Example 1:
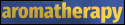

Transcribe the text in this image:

aromatherapy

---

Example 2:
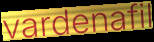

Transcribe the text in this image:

vardenafil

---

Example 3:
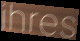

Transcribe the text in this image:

ihres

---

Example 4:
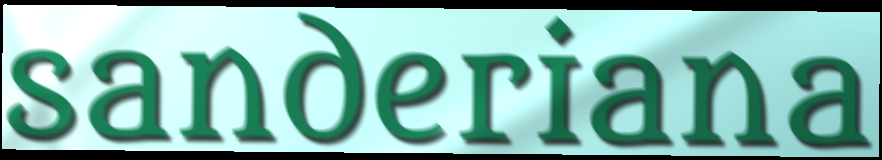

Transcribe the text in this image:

sanderiana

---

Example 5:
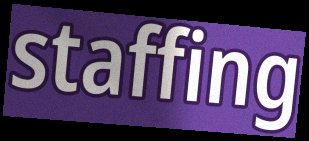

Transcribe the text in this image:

staffing